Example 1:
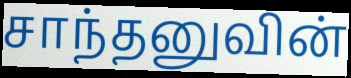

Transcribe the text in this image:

சாந்தனுவின்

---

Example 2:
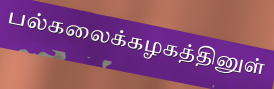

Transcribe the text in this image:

பல்கலைக்கழகத்தினுள்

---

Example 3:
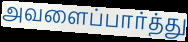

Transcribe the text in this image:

அவளைப்பார்த்து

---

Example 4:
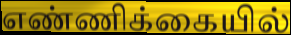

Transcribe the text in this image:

எண்ணிக்கையில்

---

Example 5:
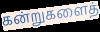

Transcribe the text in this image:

கன்றுகளைத்